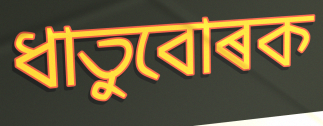
ধাতুবোৰক